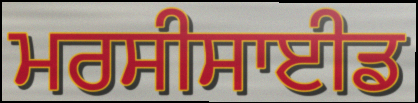
ਮਰਸੀਸਾਈਡ